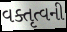
વક્તૃત્વની